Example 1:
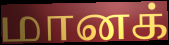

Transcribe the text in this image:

மானக்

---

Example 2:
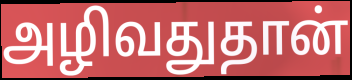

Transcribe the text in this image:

அழிவதுதான்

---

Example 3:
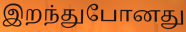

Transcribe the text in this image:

இறந்துபோனது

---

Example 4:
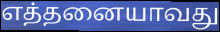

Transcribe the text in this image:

எத்தனையாவது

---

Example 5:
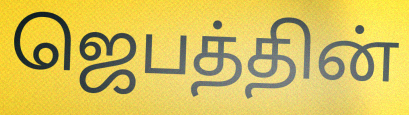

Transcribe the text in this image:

ஜெபத்தின்